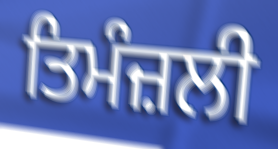
ਤਿਮੰਜ਼ਲੀ